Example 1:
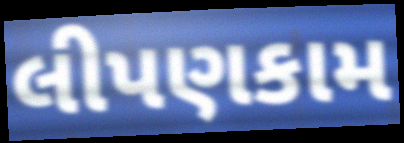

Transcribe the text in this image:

લીપણકામ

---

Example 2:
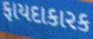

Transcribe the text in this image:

ફાયદાકારક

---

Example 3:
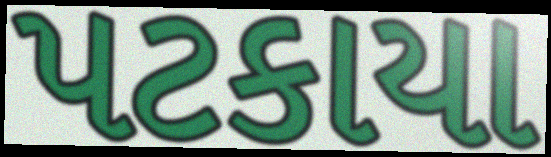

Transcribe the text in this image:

પટકાયા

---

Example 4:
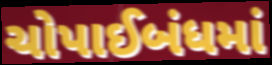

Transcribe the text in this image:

ચોપાઈબંધમાં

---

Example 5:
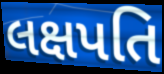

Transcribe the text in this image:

લક્ષપતિ